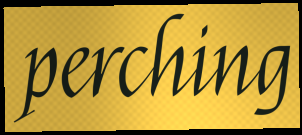
perching